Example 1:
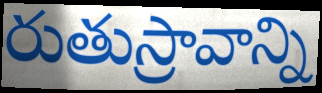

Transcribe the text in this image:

రుతుస్రావాన్ని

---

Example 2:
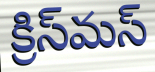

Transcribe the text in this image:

క్రిస్‌మస్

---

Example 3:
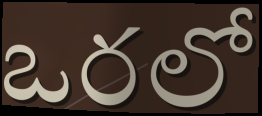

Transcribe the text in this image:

ఒరలో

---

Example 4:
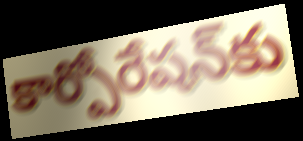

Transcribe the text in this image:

కార్పోరేషన్‌కు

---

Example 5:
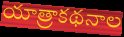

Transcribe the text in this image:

యాత్రాకథనాల